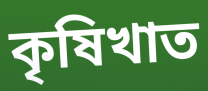
কৃষিখাত